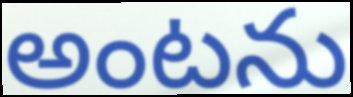
అంటను